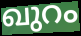
ഖുറം